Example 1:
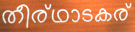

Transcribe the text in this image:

തീര്ഥാടകര്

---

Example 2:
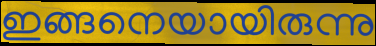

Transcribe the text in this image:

ഇങ്ങനെയായിരുന്നു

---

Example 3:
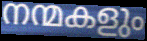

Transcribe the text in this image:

നന്മകളും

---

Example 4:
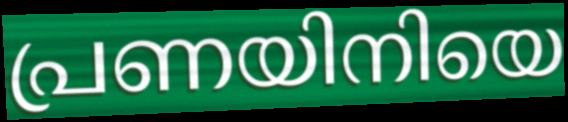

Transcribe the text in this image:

പ്രണയിനിയെ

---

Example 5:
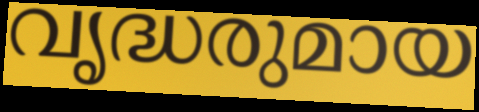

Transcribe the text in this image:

വൃദ്ധരുമായ